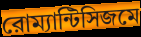
রোম্যান্টিসিজমে